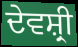
ਦੇਵਸ਼੍ਰੀ